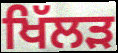
ਖਿੱਲੜ